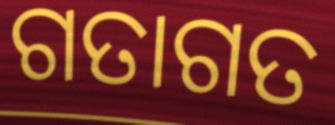
ଗତାଗତ